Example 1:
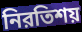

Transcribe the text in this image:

নিরতিশয়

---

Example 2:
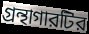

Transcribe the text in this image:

গ্রন্থাগারটির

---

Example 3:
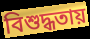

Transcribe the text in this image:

বিশুদ্ধতায়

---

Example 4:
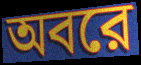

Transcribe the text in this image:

অবরে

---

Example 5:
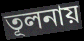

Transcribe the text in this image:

তূলনায়